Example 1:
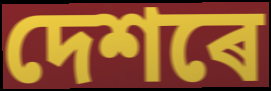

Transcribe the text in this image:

দেশৰে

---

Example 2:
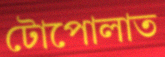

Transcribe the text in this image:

টোপোলাত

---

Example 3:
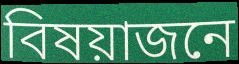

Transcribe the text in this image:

বিষয়াজনে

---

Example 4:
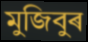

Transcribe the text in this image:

মুজিবুৰ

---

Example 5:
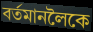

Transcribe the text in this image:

বৰ্তমানলৈকে